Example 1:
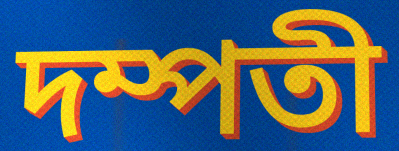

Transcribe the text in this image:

দম্পতী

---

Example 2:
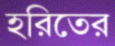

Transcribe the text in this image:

হরিতের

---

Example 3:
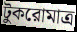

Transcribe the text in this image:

টুকরোমাত্র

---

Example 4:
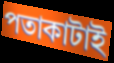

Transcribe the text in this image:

পতাকাটাই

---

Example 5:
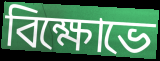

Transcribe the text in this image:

বিক্ষোভে